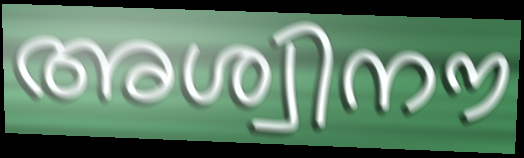
അശ്വിനൗ